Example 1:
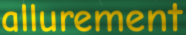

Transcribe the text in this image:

allurement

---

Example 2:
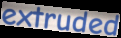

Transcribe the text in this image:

extruded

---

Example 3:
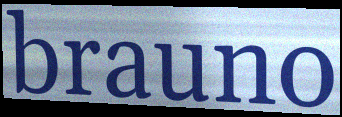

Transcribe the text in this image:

brauno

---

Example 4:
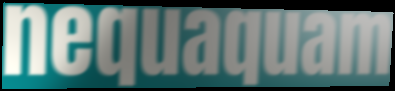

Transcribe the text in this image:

nequaquam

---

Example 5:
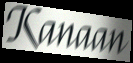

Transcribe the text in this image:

Kanaan